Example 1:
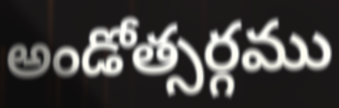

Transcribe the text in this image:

అండోత్సర్గము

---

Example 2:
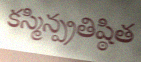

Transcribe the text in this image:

కస్మిన్ప్రతిష్ఠిత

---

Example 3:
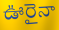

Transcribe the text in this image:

ఊరైనా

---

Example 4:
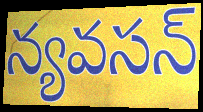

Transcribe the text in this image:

న్యవసన్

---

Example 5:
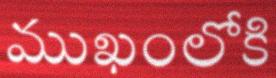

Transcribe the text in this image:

ముఖంలోకి